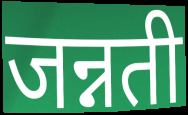
जन्नती